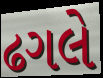
ઢગલે